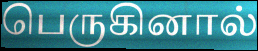
பெருகினால்